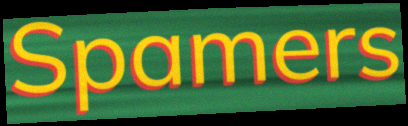
Spamers